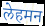
लेहमन